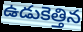
ఉడుకెత్తిన